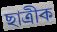
ছাত্ৰীক